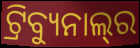
ଟ୍ରିବ୍ୟୁନାଲ୍‍ର